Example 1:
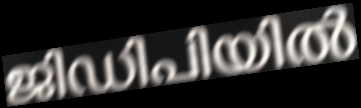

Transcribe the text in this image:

ജിഡിപിയിൽ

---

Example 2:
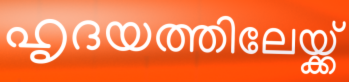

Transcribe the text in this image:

ഹൃദയത്തിലേയ്ക്ക്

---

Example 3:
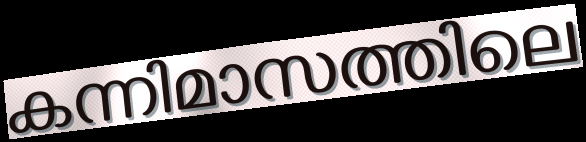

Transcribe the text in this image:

കന്നിമാസത്തിലെ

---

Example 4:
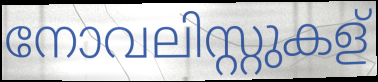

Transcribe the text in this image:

നോവലിസ്റ്റുകള്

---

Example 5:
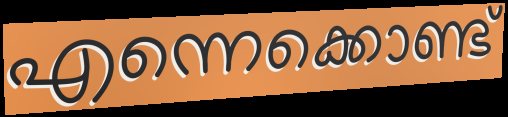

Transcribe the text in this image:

എന്നെക്കൊണ്ട്